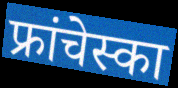
फ्रांचेस्का